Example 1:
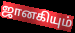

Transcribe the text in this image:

ஜானகியும்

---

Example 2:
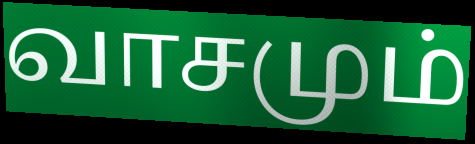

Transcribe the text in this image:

வாசமும்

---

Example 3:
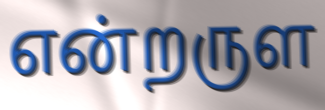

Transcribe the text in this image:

என்றருள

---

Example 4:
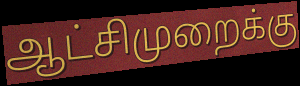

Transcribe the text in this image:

ஆட்சிமுறைக்கு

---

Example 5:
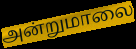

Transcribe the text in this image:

அன்றுமாலை